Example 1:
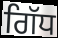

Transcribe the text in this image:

ਗਿੱਧ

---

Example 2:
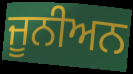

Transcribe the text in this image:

ਜੂਨੀਅਨ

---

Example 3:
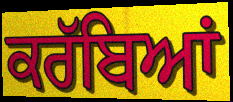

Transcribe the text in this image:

ਕਰੱਬਿਆਂ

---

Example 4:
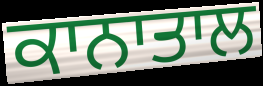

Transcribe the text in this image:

ਕਾਨਾਤਾਲ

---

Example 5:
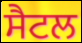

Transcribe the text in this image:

ਸੈਟਲ